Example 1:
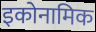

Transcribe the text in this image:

इकोनामिक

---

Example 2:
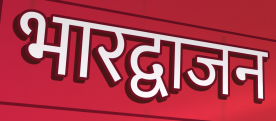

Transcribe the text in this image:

भारद्वाजन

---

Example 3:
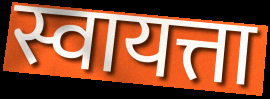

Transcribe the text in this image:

स्वायत्ता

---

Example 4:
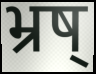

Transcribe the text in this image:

भ्रष्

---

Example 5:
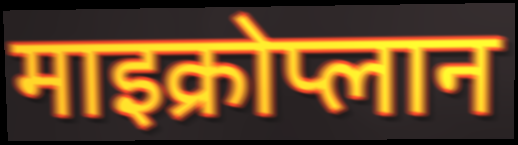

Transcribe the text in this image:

माइक्रोप्लान